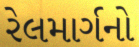
રેલમાર્ગનો